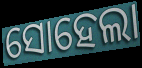
ସୋହେଲା